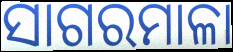
ସାଗରମାଳା